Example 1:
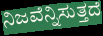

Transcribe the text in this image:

ನಿಜವೆನ್ನಿಸುತ್ತದೆ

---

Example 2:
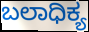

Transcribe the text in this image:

ಬಲಾಧಿಕ್ಯ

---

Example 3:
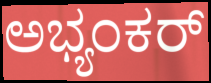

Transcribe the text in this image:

ಅಭ್ಯಂಕರ್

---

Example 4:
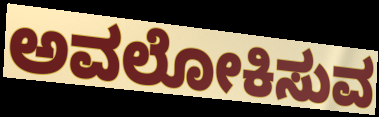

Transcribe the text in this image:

ಅವಲೋಕಿಸುವ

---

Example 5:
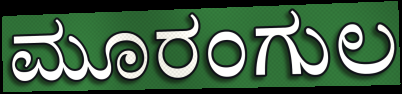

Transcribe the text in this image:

ಮೂರಂಗುಲ